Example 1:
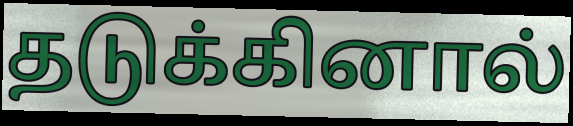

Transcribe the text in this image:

தடுக்கினால்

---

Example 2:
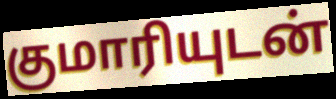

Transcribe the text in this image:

குமாரியுடன்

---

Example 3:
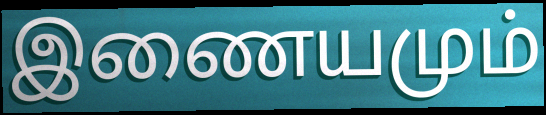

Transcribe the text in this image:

இணையமும்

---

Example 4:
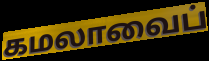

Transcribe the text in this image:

கமலாவைப்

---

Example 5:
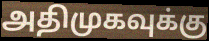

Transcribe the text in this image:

அதிமுகவுக்கு